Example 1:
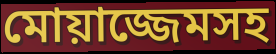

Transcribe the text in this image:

মোয়াজ্জেমসহ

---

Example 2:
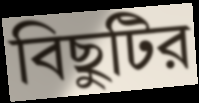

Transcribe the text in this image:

বিছুটির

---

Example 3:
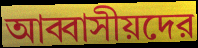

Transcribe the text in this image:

আব্বাসীয়দের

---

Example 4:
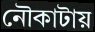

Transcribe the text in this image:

নৌকাটায়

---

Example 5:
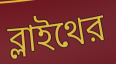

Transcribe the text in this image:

ব্লাইথের